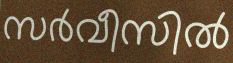
സർവീസിൽ